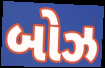
બોઝ